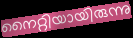
നൈറ്റിയായിരുന്നു